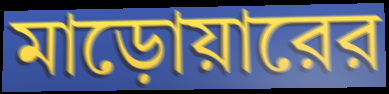
মাড়োয়ারের